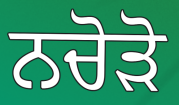
ਨਚੋੜੋ